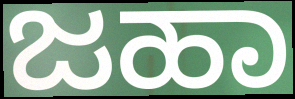
ಜಹಾ